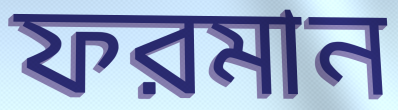
ফরমান